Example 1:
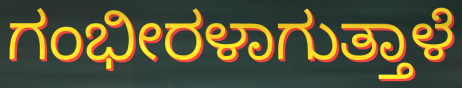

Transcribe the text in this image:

ಗಂಭೀರಳಾಗುತ್ತಾಳೆ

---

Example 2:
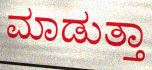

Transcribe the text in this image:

ಮಾಡುತ್ತಾ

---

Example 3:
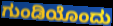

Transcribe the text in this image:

ಗುಂಡಿಯೊಂದು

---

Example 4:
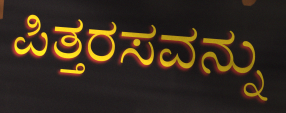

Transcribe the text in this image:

ಪಿತ್ತರಸವನ್ನು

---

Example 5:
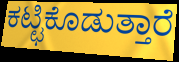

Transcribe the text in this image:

ಕಟ್ಟಿಕೊಡುತ್ತಾರೆ